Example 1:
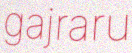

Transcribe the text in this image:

gajraru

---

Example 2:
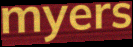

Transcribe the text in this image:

myers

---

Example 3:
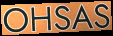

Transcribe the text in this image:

OHSAS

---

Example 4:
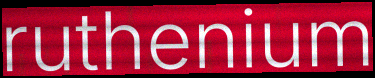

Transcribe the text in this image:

ruthenium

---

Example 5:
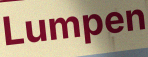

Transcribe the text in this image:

Lumpen